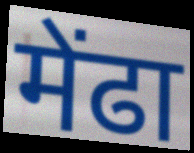
मेंढा